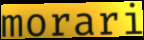
morari